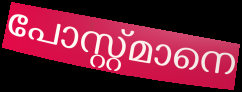
പോസ്റ്റ്മാനെ